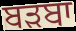
ਬੜਬਾ